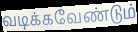
வடிக்கவேண்டும்